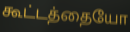
கூட்டத்தையோ